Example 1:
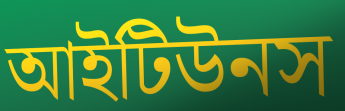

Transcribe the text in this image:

আইটিউনস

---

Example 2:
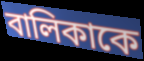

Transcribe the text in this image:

বালিকাকে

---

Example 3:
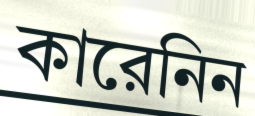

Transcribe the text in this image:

কারেনিন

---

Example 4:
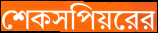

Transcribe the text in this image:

শেকসপিয়রের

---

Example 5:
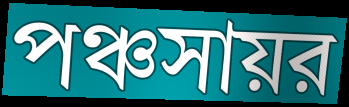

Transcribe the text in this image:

পঞ্চসায়র